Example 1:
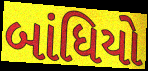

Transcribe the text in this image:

બાંધિયો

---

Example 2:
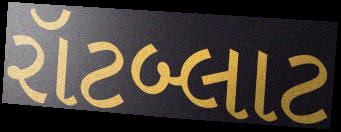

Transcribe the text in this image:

રૉટબ્લાટ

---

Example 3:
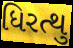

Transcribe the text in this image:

ધિરત્થુ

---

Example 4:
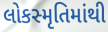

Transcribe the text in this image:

લોકસ્મૃતિમાંથી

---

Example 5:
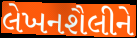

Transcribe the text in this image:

લેખનશૈલીને